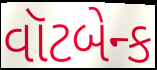
વૉટબેન્ક